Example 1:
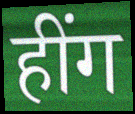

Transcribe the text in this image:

हींग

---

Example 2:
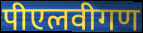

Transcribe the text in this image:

पीएलवीगण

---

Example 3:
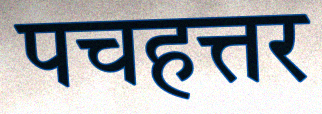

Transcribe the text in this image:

पचहत्तर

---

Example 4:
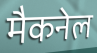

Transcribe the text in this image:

मैकनेल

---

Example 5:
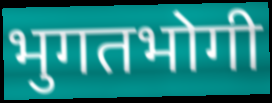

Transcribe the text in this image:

भुगतभोगी